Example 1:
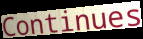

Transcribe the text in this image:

Continues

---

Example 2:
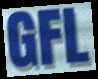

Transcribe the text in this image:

GFL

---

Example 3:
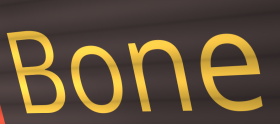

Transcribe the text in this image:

Bone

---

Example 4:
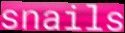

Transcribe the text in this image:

snails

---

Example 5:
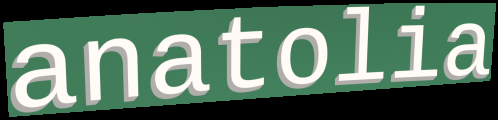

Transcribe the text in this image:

anatolia